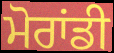
ਮੋਰਾਂਡੀ